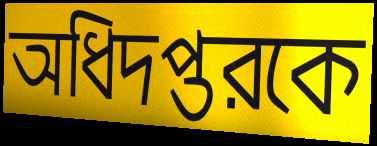
অধিদপ্তরকে